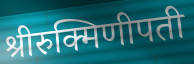
श्रीरुक्मिणीपती